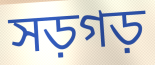
সড়গড়